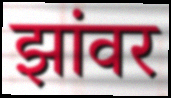
झांवर